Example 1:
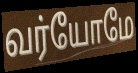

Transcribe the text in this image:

வர்யோமே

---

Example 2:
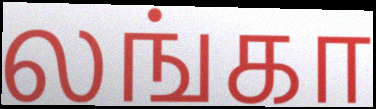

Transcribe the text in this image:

லங்கா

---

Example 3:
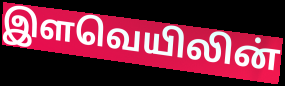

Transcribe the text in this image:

இளவெயிலின்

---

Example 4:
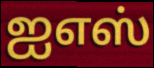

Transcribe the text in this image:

ஐஎஸ்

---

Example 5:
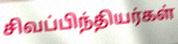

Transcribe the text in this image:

சிவப்பிந்தியர்கள்